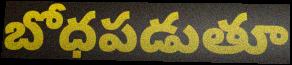
బోధపడుతూ